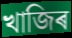
খাজিৰ